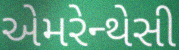
એમરેન્થેસી